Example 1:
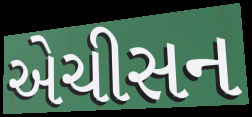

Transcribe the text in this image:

એચીસન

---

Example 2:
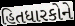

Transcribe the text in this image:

હિતધારકોને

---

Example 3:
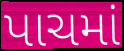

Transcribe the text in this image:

પાચમાં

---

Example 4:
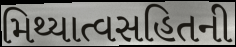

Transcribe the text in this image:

મિથ્યાત્વસહિતની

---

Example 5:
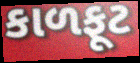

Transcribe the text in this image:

કાળફૂટ